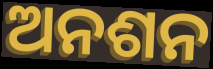
ଅନଶନ